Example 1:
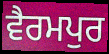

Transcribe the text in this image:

ਵੈਰਮਪੁਰ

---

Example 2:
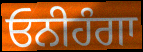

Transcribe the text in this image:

ਓਨੀਹੰਗਾ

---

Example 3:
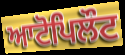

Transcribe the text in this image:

ਆਟੋਪਿਲੌਟ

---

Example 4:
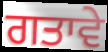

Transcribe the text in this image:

ਗਤਾਵੇ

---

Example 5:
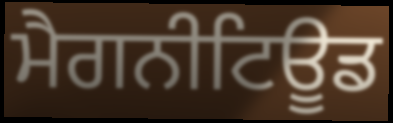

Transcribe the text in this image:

ਮੈਗਨੀਟਿਊਡ